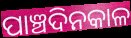
ପାଞ୍ଚଦିନକାଳ